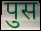
पुस